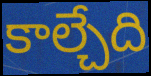
కాల్చేది